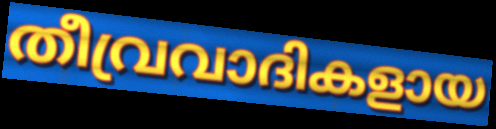
തീവ്രവാദികളായ